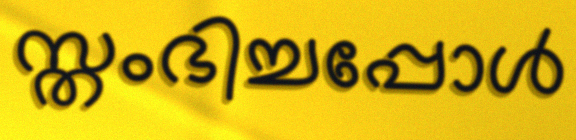
സ്തംഭിച്ചപ്പോൾ